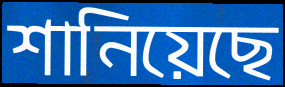
শানিয়েছে